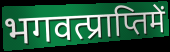
भगवत्प्राप्तिमें